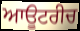
ਆਊਟਰੀਚ